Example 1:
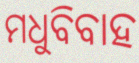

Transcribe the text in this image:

ମଧୁବିବାହ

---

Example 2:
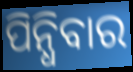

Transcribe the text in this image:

ପିନ୍ଧିବାର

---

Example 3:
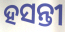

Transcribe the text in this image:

ହସନ୍ତୀ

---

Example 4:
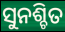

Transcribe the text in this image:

ସୁନଶ୍ଚିତ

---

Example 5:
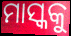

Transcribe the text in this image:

ମାସ୍କକୁ